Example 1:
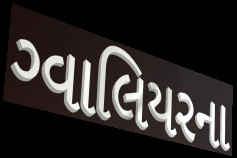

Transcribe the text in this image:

ગ્વાલિયરના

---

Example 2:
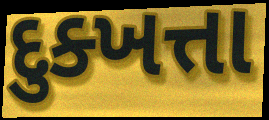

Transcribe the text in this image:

દુક્ખત્તા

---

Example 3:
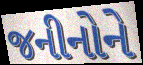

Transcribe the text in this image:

જનીનોને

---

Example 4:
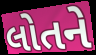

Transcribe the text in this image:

લોતને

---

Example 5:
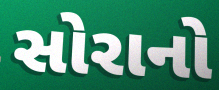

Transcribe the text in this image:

સોરાનો